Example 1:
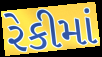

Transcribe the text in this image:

રેકીમાં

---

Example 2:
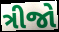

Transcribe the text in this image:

ત્રીજો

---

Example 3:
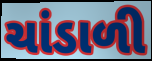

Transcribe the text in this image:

ચાંડાળી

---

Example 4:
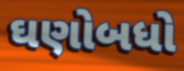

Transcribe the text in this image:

ઘણોબધો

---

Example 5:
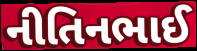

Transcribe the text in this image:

નીતિનભાઈ